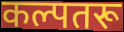
कल्पतरू